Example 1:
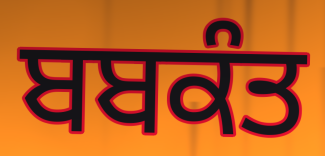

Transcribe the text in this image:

ਬਬਕੰਤ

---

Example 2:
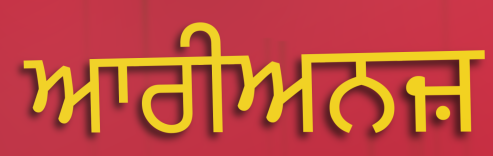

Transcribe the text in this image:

ਆਰੀਅਨਜ਼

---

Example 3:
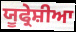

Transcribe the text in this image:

ਯੂਫ੍ਰੇਸ਼ੀਆ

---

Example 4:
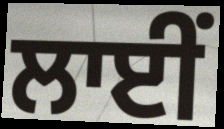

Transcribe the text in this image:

ਲਾਈਂ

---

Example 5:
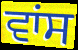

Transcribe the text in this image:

ਵਾਂਸ